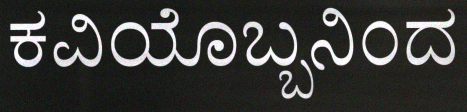
ಕವಿಯೊಬ್ಬನಿಂದ